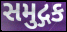
સમુદ્ગક